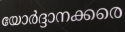
യോർദ്ദാനക്കരെ